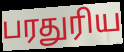
பரதுரிய